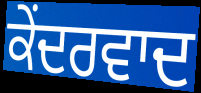
ਕੇਂਦਰਵਾਦ